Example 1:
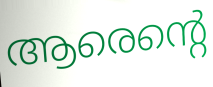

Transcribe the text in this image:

ആരെന്റെ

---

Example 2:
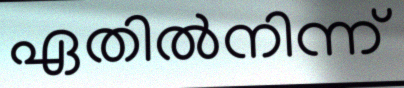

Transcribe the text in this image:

ഏതിൽനിന്ന്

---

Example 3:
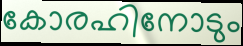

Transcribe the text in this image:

കോരഹിനോടും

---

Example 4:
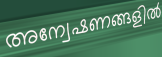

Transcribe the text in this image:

അന്വേഷണങ്ങളിൽ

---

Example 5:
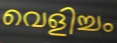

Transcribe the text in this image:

വെളിച്ചം